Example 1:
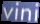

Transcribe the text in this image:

vini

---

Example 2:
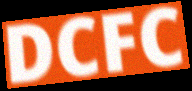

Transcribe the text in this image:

DCFC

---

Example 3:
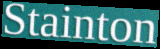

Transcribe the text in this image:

Stainton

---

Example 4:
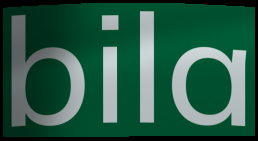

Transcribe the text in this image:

bila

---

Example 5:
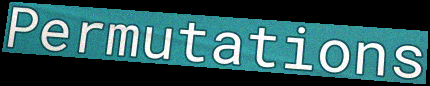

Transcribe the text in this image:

Permutations